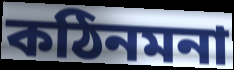
কঠিনমনা